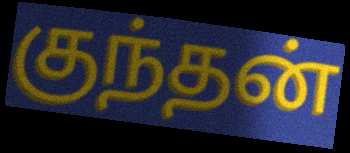
குந்தன்